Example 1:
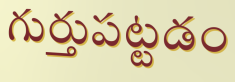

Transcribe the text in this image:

గుర్తుపట్టడం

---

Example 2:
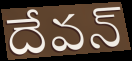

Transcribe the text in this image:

దేవన్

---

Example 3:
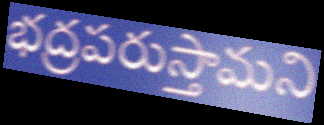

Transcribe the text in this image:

భద్రపరుస్తామని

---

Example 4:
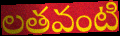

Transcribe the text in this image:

లతవంటి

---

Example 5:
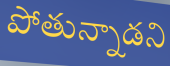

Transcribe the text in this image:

పోతున్నాడని